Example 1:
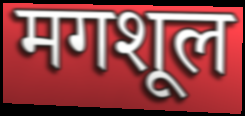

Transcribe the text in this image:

मगशूल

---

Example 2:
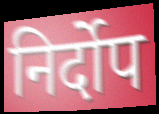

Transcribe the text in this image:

निर्दोप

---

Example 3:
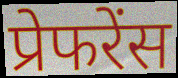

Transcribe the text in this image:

प्रेफरेंस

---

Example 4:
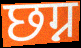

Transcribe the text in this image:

छग्न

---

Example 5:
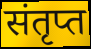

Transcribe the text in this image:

संतृप्त